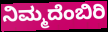
ನಿಮ್ಮದೆಂಬಿರಿ